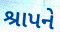
શ્રાપને